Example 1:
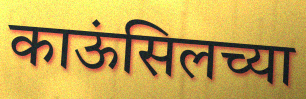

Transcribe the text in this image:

काऊंसिलच्या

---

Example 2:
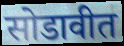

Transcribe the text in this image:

सोडावीत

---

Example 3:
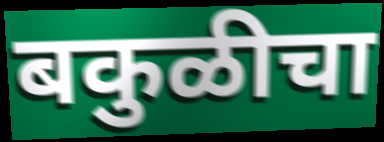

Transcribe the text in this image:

बकुळीचा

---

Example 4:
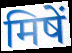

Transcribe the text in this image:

मिषें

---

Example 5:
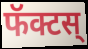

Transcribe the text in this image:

फॅक्टस्